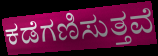
ಕಡೆಗಣಿಸುತ್ತವೆ